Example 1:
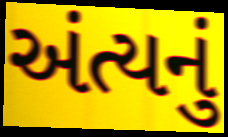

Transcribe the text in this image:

અંત્યનું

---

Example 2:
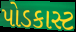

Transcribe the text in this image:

પોડકાસ્ટ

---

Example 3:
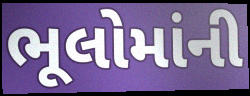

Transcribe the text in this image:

ભૂલોમાંની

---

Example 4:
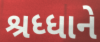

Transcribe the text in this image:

શ્રધ્ધાને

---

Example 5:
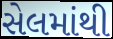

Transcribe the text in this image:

સેલમાંથી